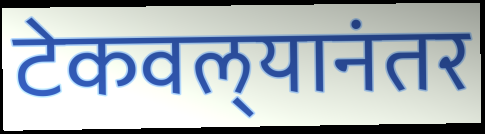
टेकवल्यानंतर